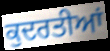
ਕੁਦਰਤੀਆਂ